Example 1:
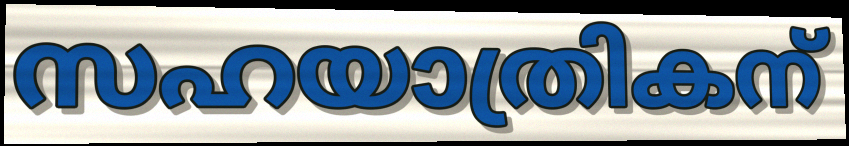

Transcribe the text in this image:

സഹയാത്രികന്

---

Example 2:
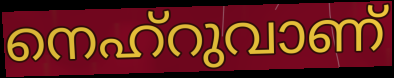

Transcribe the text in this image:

നെഹ്റുവാണ്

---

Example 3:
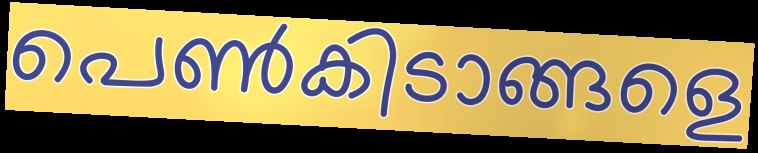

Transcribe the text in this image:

പെൺകിടാങ്ങളെ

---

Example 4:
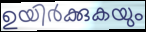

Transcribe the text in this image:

ഉയിർക്കുകയും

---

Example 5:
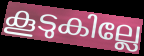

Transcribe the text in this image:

കൂടുകില്ലേ